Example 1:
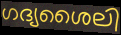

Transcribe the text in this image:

ഗദ്യശൈലി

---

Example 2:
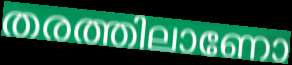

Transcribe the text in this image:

തരത്തിലാണോ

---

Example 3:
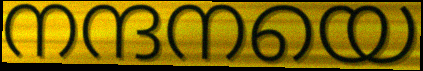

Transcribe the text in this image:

നന്ദനയെ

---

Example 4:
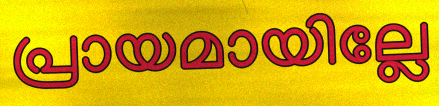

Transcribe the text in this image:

പ്രായമായില്ലേ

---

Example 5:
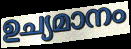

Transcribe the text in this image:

ഉച്യമാനം